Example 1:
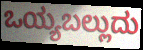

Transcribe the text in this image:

ಒಯ್ಯಬಲ್ಲುದು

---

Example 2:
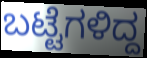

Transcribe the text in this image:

ಬಟ್ಟೆಗಳಿದ್ದ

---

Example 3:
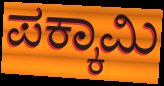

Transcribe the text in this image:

ಪಕ್ಕಾಮಿ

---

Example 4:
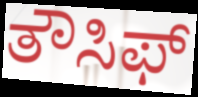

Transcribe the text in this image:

ತೌಸಿಫ್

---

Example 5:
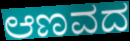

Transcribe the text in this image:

ಆಣವದ